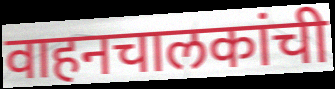
वाहनचालकांची